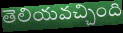
తెలియవచ్చింది